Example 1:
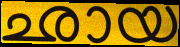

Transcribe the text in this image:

ഛായ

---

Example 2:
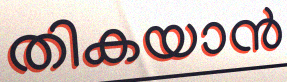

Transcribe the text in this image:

തികയാൻ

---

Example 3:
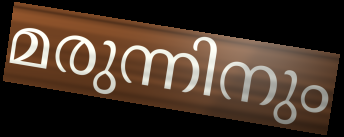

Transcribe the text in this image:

മരുന്നിനും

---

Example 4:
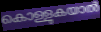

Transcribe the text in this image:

കൊള്ളുകയാൽ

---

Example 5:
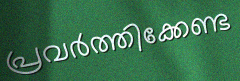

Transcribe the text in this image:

പ്രവർത്തിക്കേണ്ട